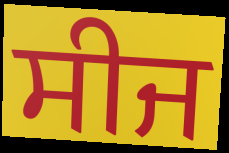
ਸੀਜ